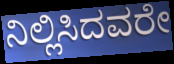
ನಿಲ್ಲಿಸಿದವರೇ